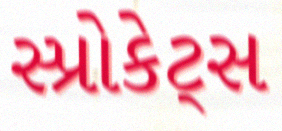
સ્પ્રોકેટ્સ